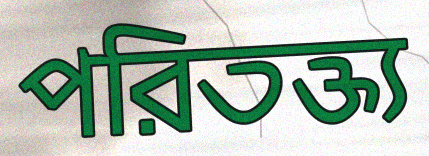
পরিতক্ত্য